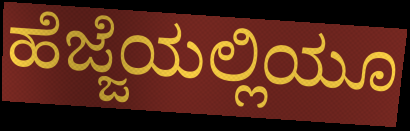
ಹೆಜ್ಜೆಯಲ್ಲಿಯೂ